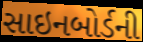
સાઇનબોર્ડની